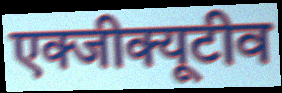
एक्जीक्यूटीव